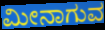
ಮೀನಾಗುವ